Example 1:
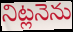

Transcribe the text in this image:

నిట్లనెను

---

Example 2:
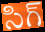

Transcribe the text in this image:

సిగ్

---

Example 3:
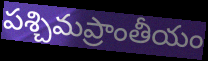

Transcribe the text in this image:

పశ్చిమప్రాంతీయం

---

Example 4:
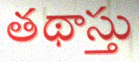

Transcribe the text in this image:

తథాస్తు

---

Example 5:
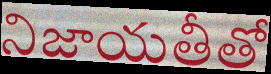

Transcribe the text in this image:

నిజాయతీతో